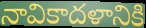
నావికాదళానికి